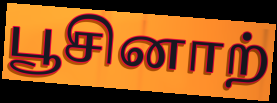
பூசினாற்